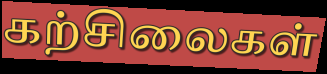
கற்சிலைகள்